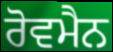
ਰੋਵਮੈਨ